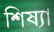
শিষ্যা